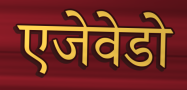
एजेवेडो